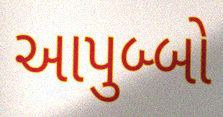
આપુબ્બો